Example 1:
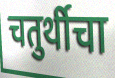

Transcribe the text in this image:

चतुर्थीचा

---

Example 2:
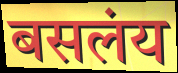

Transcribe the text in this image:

बसलंय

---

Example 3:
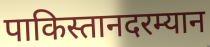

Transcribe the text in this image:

पाकिस्तानदरम्यान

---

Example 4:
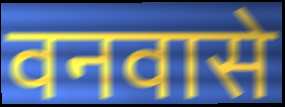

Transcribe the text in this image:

वनवासे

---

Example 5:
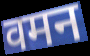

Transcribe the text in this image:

वमन